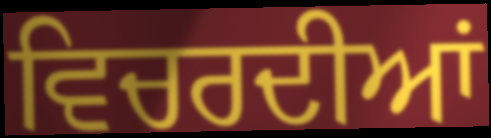
ਵਿਚਰਦੀਆਂ